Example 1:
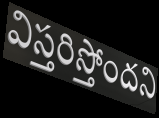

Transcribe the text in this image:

విస్తరిస్తోందని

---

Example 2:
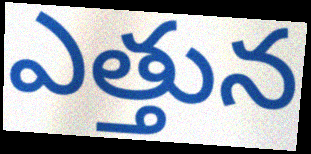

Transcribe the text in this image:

ఎత్తున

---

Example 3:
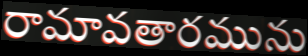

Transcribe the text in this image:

రామావతారమును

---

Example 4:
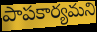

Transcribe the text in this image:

పాపకార్యమని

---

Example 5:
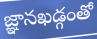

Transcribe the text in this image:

జ్ఞానఖడ్గంతో